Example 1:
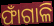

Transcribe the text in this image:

ଫାଁଗାଳି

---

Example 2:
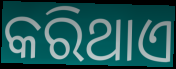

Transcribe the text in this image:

କରିଥାଏ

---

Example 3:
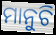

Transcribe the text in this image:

ମାନୁଚି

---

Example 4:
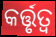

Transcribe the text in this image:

କର୍ତ୍ତୃତ୍ୱ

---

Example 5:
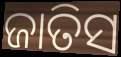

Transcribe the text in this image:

ଜାତିସ